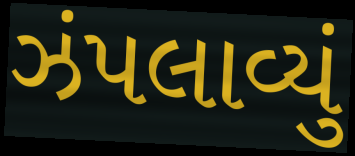
ઝંપલાવ્યું